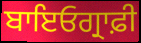
ਬਾਇਓਗ੍ਰਾਫ਼ੀ